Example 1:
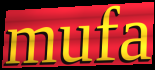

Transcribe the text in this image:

mufa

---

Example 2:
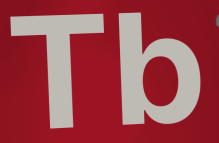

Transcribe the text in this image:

Tb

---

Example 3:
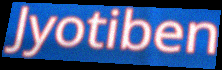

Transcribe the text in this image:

Jyotiben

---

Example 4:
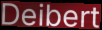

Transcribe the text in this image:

Deibert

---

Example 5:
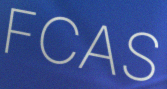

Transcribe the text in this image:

FCAS